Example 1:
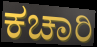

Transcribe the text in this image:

ಕಚಾರಿ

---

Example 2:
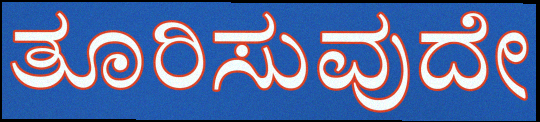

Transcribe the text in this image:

ತೂರಿಸುವುದೇ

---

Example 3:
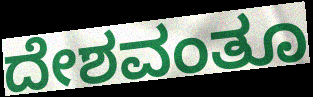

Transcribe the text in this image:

ದೇಶವಂತೂ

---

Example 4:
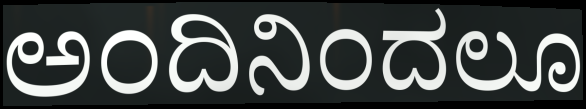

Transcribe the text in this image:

ಅಂದಿನಿಂದಲೂ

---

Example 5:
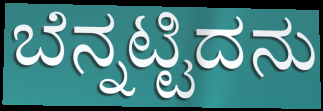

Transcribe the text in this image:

ಬೆನ್ನಟ್ಟಿದನು